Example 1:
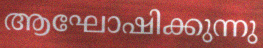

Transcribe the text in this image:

ആഘോഷിക്കുന്നു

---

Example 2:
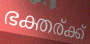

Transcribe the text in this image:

ഭക്തര്ക്ക്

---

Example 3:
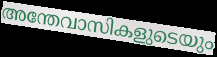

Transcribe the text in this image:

അന്തേവാസികളുടെയും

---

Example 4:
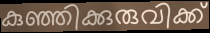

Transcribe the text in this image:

കുഞ്ഞിക്കുരുവിക്ക്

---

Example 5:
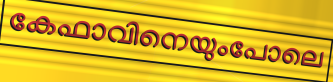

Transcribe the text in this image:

കേഫാവിനെയുംപോലെ